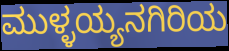
ಮುಳ್ಳಯ್ಯನಗಿರಿಯ